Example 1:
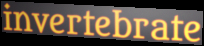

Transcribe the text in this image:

invertebrate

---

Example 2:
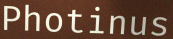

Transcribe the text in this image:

Photinus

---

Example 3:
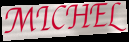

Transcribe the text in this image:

MICHEL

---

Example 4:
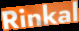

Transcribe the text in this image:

Rinkal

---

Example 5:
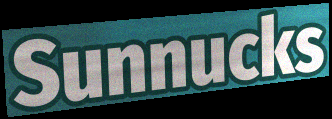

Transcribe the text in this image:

Sunnucks